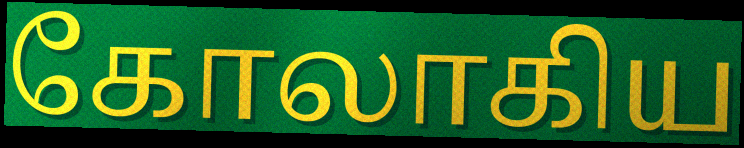
கோலாகிய